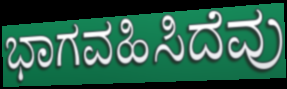
ಭಾಗವಹಿಸಿದೆವು